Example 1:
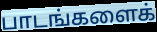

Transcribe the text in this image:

பாடங்களைக்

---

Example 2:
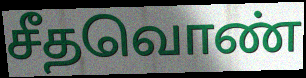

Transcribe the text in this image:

சீதவொண்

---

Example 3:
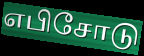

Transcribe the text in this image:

எபிசோடு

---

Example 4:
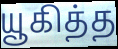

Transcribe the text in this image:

யூகித்த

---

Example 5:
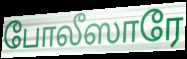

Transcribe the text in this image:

போலீஸாரே